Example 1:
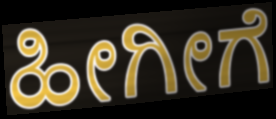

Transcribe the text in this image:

ಹೀಗೀಗೆ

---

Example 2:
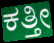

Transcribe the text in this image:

ಕತ್ತೀ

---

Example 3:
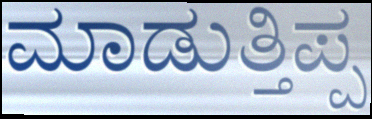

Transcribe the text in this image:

ಮಾಡುತ್ತಿಪ್ಪ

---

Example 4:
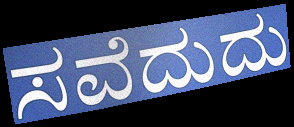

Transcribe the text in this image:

ಸವೆದುದು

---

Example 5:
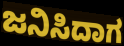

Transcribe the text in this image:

ಜನಿಸಿದಾಗ